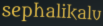
sephalikalu